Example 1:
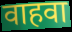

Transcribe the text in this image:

वाहवा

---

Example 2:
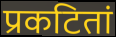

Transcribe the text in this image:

प्रकटितां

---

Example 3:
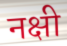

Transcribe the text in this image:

नक्षी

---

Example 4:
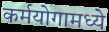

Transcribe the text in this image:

कर्मयोगामध्ये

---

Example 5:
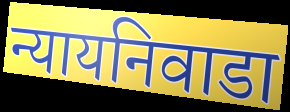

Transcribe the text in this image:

न्यायनिवाडा